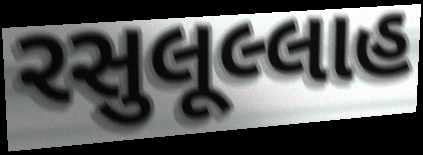
રસુલૂલ્લાહ